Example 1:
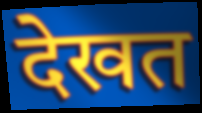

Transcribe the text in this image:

देखत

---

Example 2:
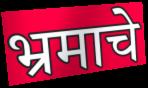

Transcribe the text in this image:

भ्रमाचे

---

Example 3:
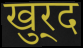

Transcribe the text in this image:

खुर्द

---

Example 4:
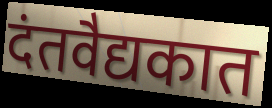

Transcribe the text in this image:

दंतवैद्यकात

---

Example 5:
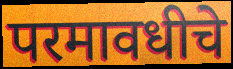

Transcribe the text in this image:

परमावधीचे